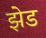
झेड